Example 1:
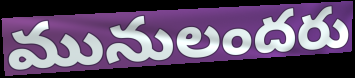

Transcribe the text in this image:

మునులందరు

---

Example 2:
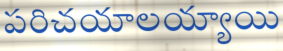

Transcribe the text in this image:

పరిచయాలయ్యాయి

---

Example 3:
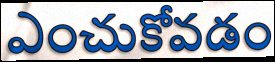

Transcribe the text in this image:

ఎంచుకోవడం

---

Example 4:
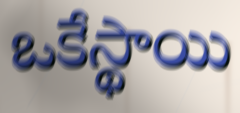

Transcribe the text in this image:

ఒకేస్థాయి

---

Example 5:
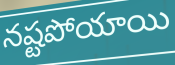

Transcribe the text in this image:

నష్టపోయాయి